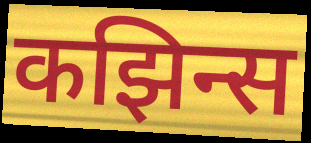
कझिन्स